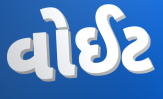
વોઈટ